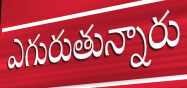
ఎగురుతున్నారు